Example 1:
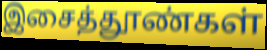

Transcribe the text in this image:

இசைத்தூண்கள்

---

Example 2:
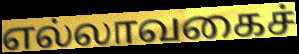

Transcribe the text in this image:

எல்லாவகைச்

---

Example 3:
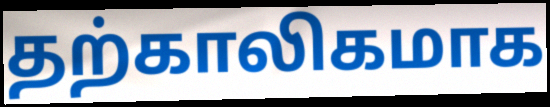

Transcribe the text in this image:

தற்காலிகமாக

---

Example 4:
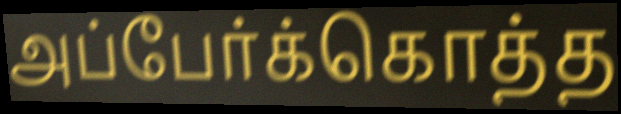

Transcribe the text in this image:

அப்பேர்க்கொத்த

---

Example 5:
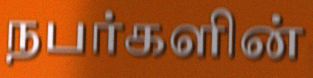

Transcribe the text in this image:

நபர்களின்